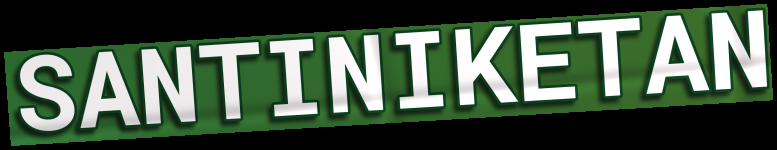
SANTINIKETAN